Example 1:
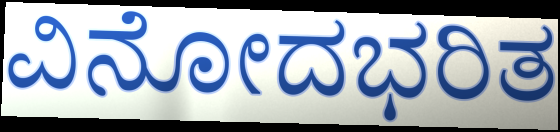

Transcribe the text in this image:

ವಿನೋದಭರಿತ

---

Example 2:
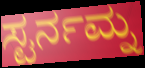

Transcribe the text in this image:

ಸ್ಟರ್ನಮ್ನ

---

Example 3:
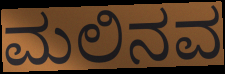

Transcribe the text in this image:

ಮಲಿನವ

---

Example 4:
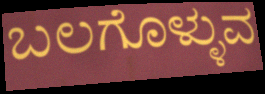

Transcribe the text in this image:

ಬಲಗೊಳ್ಳುವ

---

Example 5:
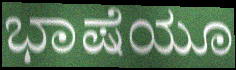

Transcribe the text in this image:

ಭಾಷೆಯೂ